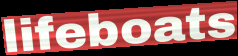
lifeboats